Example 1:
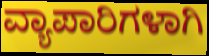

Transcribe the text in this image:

ವ್ಯಾಪಾರಿಗಳಾಗಿ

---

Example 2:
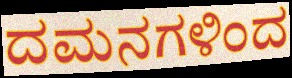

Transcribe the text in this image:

ದಮನಗಳಿಂದ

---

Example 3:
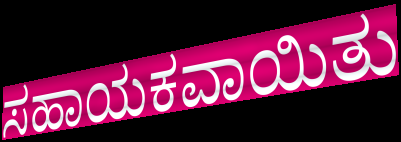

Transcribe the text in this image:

ಸಹಾಯಕವಾಯಿತು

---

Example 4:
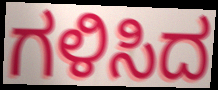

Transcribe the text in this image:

ಗಳಿಸಿದ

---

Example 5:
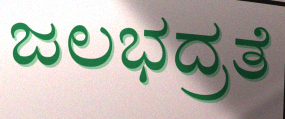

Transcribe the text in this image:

ಜಲಭದ್ರತೆ